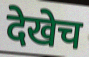
देखेच